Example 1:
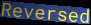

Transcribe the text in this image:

Reversed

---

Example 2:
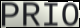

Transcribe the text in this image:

PRIO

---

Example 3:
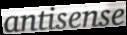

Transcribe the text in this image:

antisense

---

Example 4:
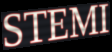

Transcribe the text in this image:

STEMI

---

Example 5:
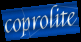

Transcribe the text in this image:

coprolite